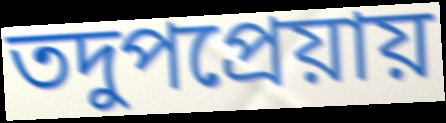
তদুপপ্রেয়ায়